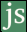
js